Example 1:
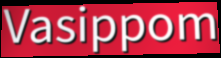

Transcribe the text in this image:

Vasippom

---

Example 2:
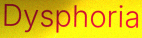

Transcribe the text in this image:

Dysphoria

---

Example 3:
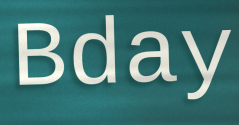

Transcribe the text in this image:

Bday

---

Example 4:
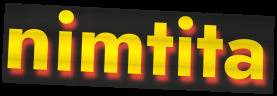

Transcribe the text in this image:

nimtita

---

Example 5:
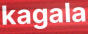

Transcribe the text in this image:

kagala